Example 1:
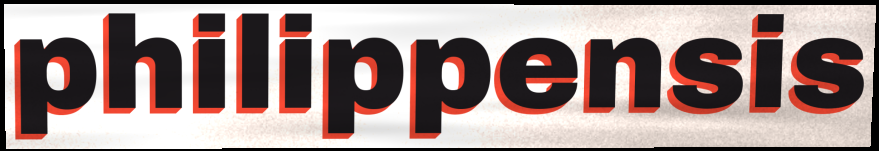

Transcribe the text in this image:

philippensis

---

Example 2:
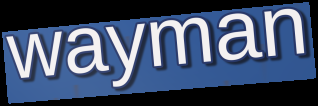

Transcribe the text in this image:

wayman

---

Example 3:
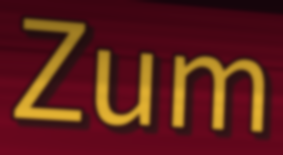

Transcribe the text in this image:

Zum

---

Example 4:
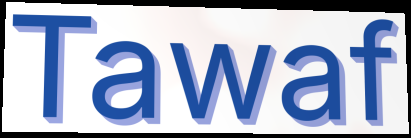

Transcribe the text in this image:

Tawaf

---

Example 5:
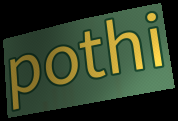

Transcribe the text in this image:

pothi